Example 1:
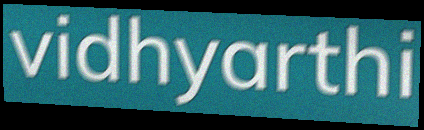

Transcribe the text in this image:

vidhyarthi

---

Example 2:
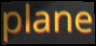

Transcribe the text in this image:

plane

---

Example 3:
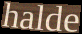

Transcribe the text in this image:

halde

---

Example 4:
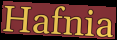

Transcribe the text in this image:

Hafnia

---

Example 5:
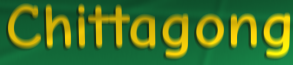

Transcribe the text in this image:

Chittagong